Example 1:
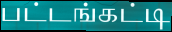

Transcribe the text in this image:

பட்டங்கட்டி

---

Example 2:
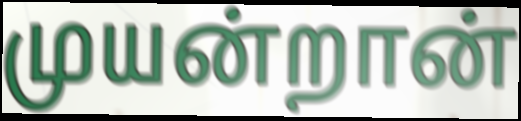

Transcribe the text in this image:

முயன்றான்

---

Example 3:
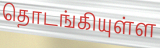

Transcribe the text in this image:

தொடங்கியுள்ள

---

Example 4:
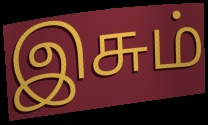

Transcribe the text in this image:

இசும்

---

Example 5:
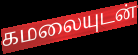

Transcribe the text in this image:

கமலையுடன்